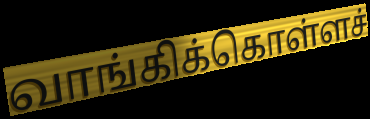
வாங்கிக்கொள்ளச்